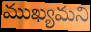
ముఖ్యమని